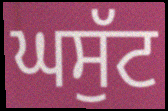
ਘਸੁੱਟ